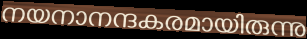
നയനാനന്ദകരമായിരുന്നു